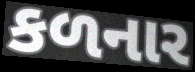
કળનાર